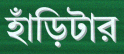
হাঁড়িটার